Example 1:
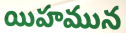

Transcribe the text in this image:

యిహమున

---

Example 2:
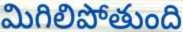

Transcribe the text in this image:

మిగిలిపోతుంది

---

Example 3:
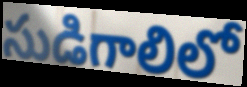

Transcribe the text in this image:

సుడిగాలిలో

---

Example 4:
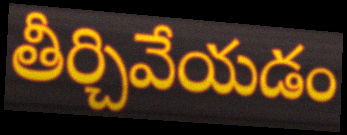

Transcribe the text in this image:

తీర్చివేయడం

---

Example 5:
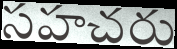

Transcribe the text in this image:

సహచరు